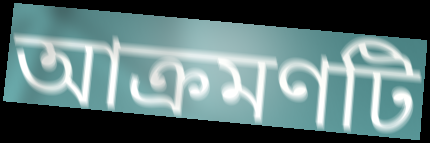
আক্রমণটি